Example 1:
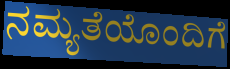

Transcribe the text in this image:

ನಮ್ಯತೆಯೊಂದಿಗೆ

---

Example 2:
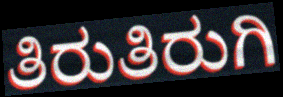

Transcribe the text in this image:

ತಿರುತಿರುಗಿ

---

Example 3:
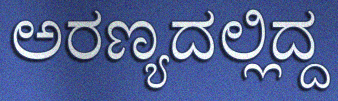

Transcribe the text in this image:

ಅರಣ್ಯದಲ್ಲಿದ್ದ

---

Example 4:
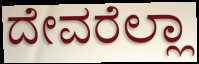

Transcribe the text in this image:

ದೇವರೆಲ್ಲಾ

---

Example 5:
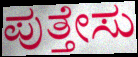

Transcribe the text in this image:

ಪುತ್ತೇಸು